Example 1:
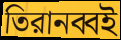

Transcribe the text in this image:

তিরানব্বই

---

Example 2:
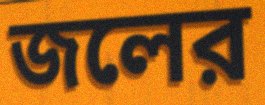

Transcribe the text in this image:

জলের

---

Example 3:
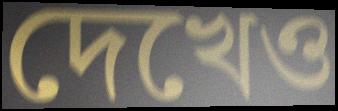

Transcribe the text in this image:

দেখেও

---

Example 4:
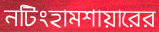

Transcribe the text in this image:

নটিংহামশায়ারের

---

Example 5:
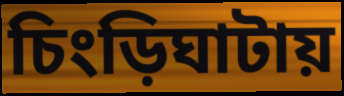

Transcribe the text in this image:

চিংড়িঘাটায়